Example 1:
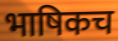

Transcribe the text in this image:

भाषिकच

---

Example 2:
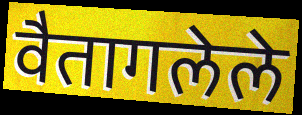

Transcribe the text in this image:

वैतागलेले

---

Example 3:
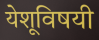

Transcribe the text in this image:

येशूविषयी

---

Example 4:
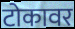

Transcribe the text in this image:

टोकावर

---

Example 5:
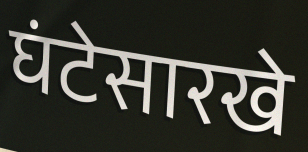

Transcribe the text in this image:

घंटेसारखे